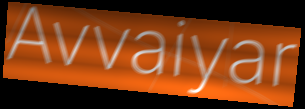
Avvaiyar